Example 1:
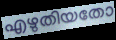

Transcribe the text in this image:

എഴുതിയതോ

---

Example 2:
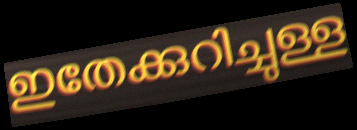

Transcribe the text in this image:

ഇതേക്കുറിച്ചുള്ള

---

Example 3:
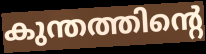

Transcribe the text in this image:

കുന്തത്തിന്റെ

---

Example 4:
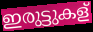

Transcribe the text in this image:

ഇരുട്ടുകള്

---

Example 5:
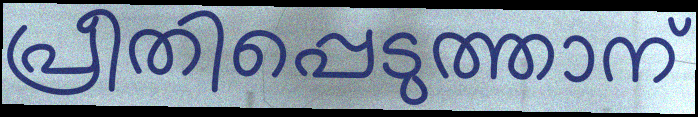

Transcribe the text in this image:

പ്രീതിപ്പെടുത്താന്